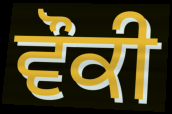
ਵੌਕੀ